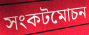
সংকটমোচন